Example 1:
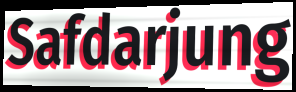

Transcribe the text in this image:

Safdarjung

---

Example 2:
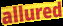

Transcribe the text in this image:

allured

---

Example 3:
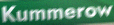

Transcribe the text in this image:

Kummerow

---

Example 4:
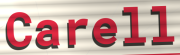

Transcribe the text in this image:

Carell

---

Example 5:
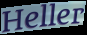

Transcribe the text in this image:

Heller